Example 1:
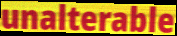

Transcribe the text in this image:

unalterable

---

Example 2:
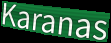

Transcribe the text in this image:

Karanas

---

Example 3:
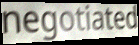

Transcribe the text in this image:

negotiated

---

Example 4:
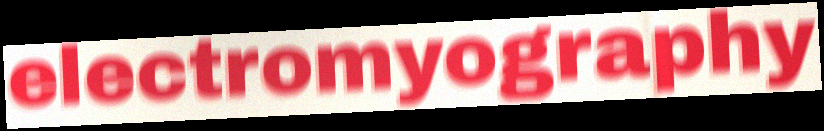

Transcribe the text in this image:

electromyography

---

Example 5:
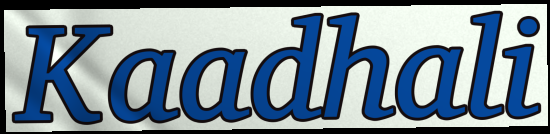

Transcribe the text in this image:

Kaadhali